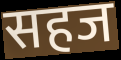
सहज